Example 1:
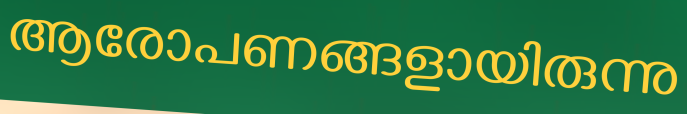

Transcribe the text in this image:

ആരോപണങ്ങളായിരുന്നു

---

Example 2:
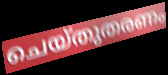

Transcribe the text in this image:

ചെയ്തുതരണം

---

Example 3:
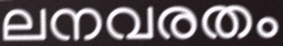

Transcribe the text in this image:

ലനവരതം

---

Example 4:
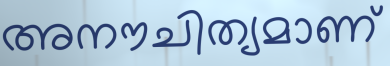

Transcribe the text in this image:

അനൗചിത്യമാണ്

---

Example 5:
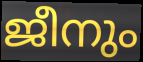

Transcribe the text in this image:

ജീനും